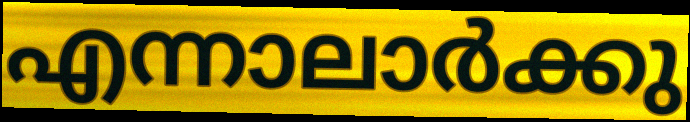
എന്നാലാർക്കു